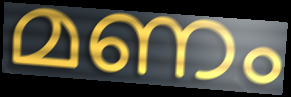
മണം